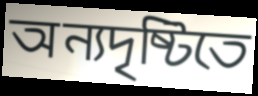
অন্যদৃষ্টিতে